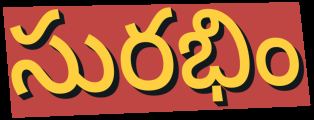
సురభిం